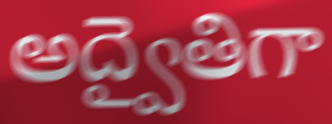
అద్వైతిగా